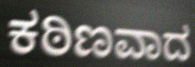
ಕಠಿಣವಾದ